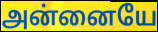
அன்னையே